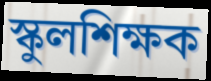
স্কুলশিক্ষক